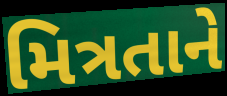
મિત્રતાને